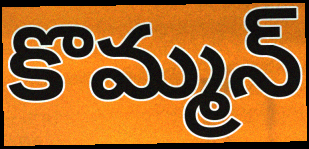
కొమ్మన్